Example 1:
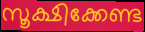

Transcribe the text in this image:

സൂക്ഷിക്കേണ്ട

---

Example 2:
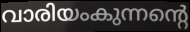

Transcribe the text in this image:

വാരിയംകുന്നന്റെ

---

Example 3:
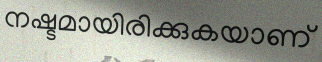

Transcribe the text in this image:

നഷ്ടമായിരിക്കുകയാണ്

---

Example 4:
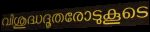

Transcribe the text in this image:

വിശുദ്ധദൂതരോടുകൂടെ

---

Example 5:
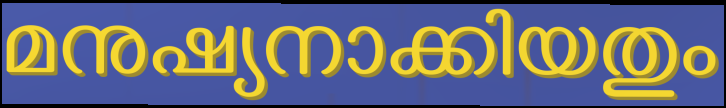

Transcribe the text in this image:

മനുഷ്യനാക്കിയതും